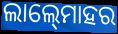
ଲାଲ୍‍ମୋହର